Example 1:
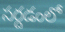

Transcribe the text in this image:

సర్దడంలో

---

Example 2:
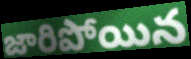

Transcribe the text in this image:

జారిపోయిన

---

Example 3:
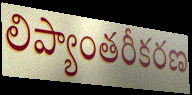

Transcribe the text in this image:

లిప్యాంతరీకరణ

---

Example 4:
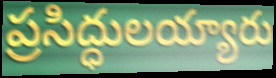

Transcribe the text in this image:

ప్రసిద్ధులయ్యారు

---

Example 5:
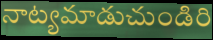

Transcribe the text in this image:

నాట్యమాడుచుండిరి